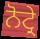
ਨੋਟ੍ਰੇ